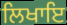
ਲਿਖਾਇ